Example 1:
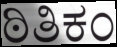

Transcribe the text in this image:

ಠಿತಿಕಂ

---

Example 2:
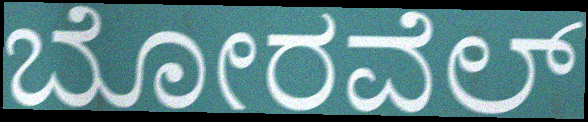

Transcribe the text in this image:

ಬೋರವೆಲ್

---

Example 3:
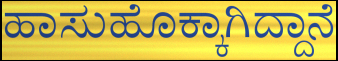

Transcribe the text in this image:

ಹಾಸುಹೊಕ್ಕಾಗಿದ್ದಾನೆ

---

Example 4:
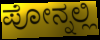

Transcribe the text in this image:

ಪೋನ್ನಲ್ಲಿ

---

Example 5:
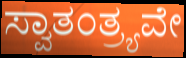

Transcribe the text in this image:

ಸ್ವಾತಂತ್ರ್ಯವೇ